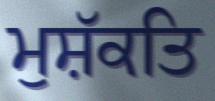
ਮੁਸ਼ੱਕਤਿ